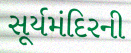
સૂર્યમંદિરની